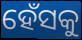
ହେଁସକୁ